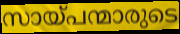
സായ്പന്മാരുടെ